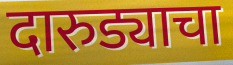
दारुड्याचा